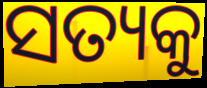
ସତ୍ୟକୁ